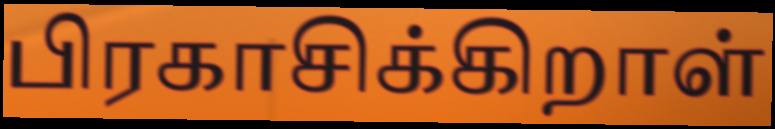
பிரகாசிக்கிறாள்